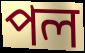
পল